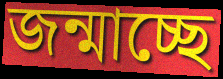
জন্মাচ্ছে